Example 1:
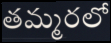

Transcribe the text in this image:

తమ్మరలో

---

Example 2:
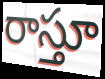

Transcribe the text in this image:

రాస్తూ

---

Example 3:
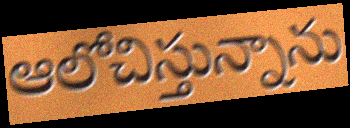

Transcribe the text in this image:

ఆలోచిస్తున్నాను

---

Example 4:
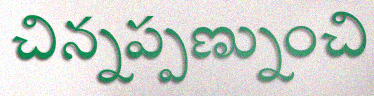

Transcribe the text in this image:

చిన్నప్పణ్నుంచి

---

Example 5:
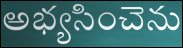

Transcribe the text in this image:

అభ్యసించెను